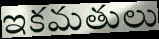
ఇకమతులు